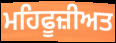
ਮਹਿਫੂਜ਼ੀਅਤ